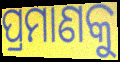
ପ୍ରମାଣକୁ